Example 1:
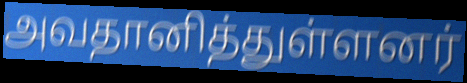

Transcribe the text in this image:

அவதானித்துள்ளனர்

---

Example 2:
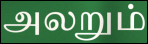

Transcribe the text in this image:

அலறும்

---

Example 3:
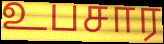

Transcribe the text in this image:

உபசார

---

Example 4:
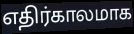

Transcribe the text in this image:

எதிர்காலமாக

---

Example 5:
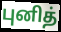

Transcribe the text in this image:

புனித்